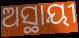
ଅସ୍ଥାୟୀ